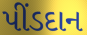
પીંડદાન